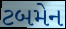
ટબમેન